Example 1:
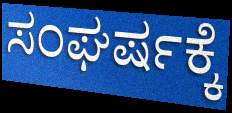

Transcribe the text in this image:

ಸಂಘರ್ಷಕ್ಕೆ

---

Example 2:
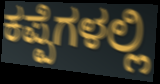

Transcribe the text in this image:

ಕಪ್ಪೆಗಳಲ್ಲಿ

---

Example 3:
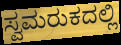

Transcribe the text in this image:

ಸ್ವಮರುಕದಲ್ಲಿ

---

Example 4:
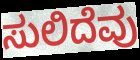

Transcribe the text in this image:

ಸುಲಿದೆವು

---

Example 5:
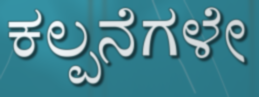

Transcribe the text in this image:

ಕಲ್ಪನೆಗಳೇ